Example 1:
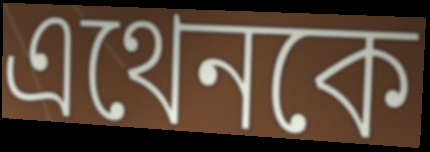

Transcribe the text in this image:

এথেনকে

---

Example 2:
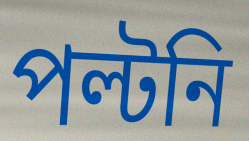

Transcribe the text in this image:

পল্টনি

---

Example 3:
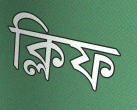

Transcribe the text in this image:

ক্লিফ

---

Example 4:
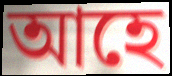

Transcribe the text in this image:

আহে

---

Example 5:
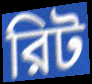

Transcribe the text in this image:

রিট